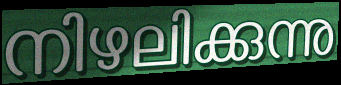
നിഴലിക്കുന്നു